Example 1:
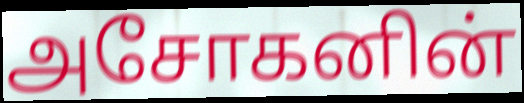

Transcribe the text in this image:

அசோகனின்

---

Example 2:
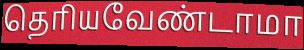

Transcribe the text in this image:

தெரியவேண்டாமா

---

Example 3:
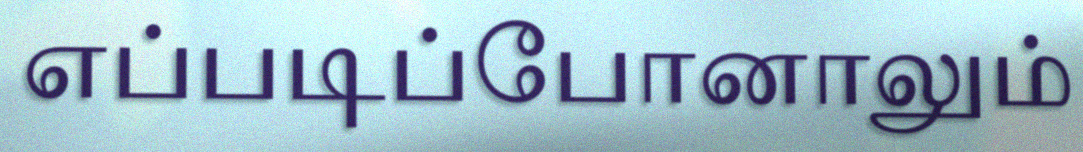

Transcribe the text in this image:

எப்படிப்போனாலும்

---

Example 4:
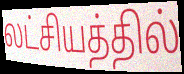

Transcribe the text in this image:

லட்சியத்தில்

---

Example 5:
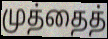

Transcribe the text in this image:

முத்தைத்